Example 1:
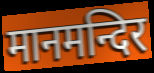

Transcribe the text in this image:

मानमन्दिर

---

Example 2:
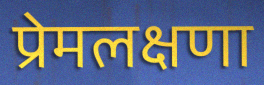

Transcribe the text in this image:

प्रेमलक्षणा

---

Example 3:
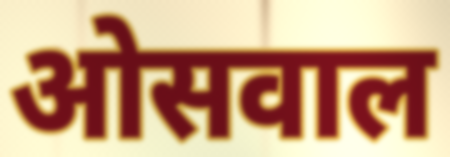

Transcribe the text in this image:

ओसवाल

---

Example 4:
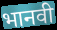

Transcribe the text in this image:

भानवी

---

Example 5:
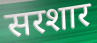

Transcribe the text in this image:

सरशार